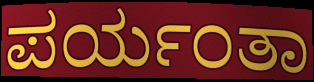
ಪರ್ಯಂತಾ